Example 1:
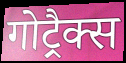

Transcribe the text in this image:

गोट्रैक्स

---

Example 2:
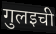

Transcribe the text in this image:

गुलइची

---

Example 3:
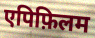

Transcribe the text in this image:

एपिफ़िलम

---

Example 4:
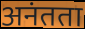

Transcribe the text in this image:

अनंतता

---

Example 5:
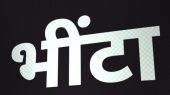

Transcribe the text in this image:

भींटा